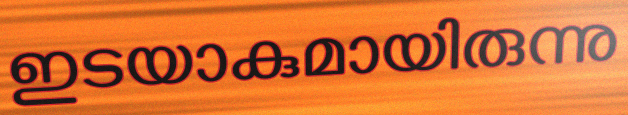
ഇടയാകുമായിരുന്നു